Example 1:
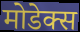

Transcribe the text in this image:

मोडेक्स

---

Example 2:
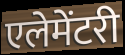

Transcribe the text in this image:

एलेमेंटरी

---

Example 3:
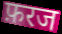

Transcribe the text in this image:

फ़रज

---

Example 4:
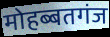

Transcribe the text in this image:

मोहब्बतगंज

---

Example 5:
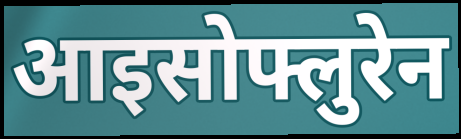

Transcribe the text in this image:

आइसोफ्लुरेन